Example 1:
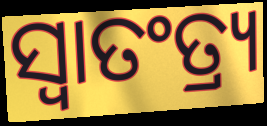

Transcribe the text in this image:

ସ୍ଵାତଂତ୍ର୍ୟ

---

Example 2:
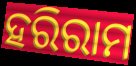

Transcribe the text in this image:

ହରିରାମ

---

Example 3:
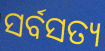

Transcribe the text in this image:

ସର୍ବସତ୍ୟ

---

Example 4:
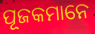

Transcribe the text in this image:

ପୂଜକମାନେ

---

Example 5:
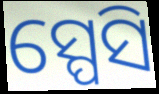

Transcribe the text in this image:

ସ୍ପେସି